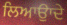
ਲਿਆਉਾਦੇ